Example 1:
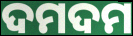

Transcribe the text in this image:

ଦମଦମ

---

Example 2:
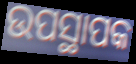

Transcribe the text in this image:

ଉପସ୍ଥାପକ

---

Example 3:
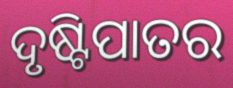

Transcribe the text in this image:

ଦୃଷ୍ଟିପାତର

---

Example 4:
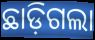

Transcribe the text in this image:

ଛାଡ଼ିଗଲା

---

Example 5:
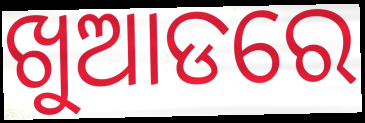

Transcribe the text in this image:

ଖୁଆଡରେ